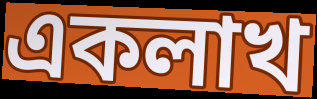
একলাখ